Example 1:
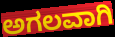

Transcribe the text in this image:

ಅಗಲವಾಗಿ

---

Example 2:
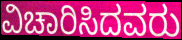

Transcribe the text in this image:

ವಿಚಾರಿಸಿದವರು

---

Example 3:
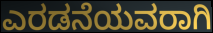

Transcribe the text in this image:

ಎರಡನೆಯವರಾಗಿ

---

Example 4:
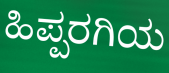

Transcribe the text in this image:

ಹಿಪ್ಪರಗಿಯ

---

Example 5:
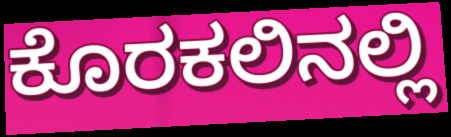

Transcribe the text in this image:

ಕೊರಕಲಿನಲ್ಲಿ